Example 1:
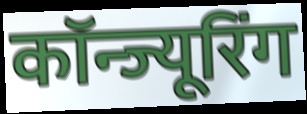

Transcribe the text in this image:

कॉन्ज्यूरिंग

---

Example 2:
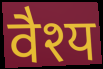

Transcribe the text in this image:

वैश्य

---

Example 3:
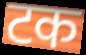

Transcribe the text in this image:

टक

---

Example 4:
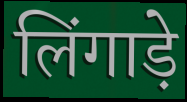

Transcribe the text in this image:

लिंगाड़े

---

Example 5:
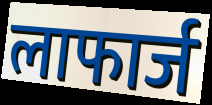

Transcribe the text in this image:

लाफार्ज